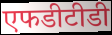
एफडीटीडी